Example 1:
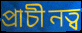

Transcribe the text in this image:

প্ৰাচীনত্ব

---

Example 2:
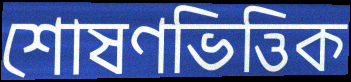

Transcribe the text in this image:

শোষণভিত্তিক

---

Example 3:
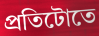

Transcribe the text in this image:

প্ৰতিটোতে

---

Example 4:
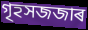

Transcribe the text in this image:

গৃহসজজাৰ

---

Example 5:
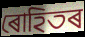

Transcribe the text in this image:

ৰোহিতৰ